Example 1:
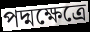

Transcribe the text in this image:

পদ্মক্ষেত্রে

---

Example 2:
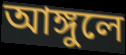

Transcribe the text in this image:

আঙ্গুলে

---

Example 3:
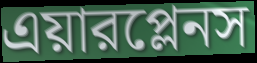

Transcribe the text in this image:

এয়ারপ্লেনস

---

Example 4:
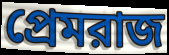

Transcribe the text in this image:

প্রেমরাজ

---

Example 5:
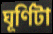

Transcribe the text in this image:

ঘূর্ণিটা